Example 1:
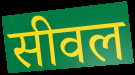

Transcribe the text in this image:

सीवल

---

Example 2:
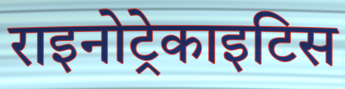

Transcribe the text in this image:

राइनोट्रेकाइटिस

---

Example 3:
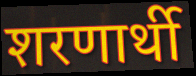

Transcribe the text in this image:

शरणार्थी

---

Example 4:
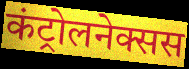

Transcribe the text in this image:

कंट्रोलनेक्सस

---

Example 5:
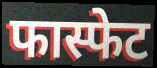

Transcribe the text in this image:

फास्फेट